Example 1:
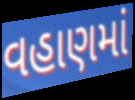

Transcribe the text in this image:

વહાણમાં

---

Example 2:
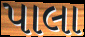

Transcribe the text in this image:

પાલા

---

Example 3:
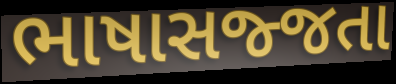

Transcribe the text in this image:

ભાષાસજ્જતા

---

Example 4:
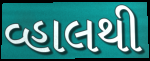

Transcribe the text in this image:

વ્હાલથી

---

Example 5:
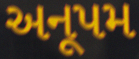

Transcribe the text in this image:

અનૂપમ